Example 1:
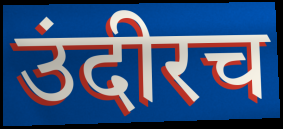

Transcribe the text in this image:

उंदीरच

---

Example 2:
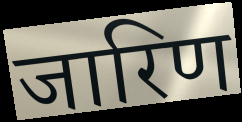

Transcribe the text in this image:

जारिण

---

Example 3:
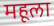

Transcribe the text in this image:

महूला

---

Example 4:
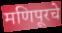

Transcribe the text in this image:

मणिपूरचे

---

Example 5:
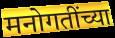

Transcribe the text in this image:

मनोगतींच्या